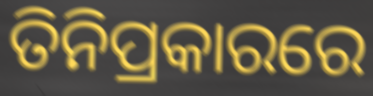
ତିନିପ୍ରକାରରେ